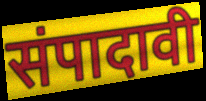
संपादावी